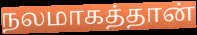
நலமாகத்தான்